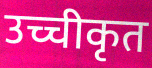
उच्चीकृत